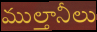
ముల్తానీలు